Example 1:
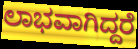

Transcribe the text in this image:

ಲಾಭವಾಗಿದ್ದರೆ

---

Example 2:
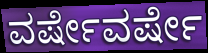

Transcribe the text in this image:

ವರ್ಷೇವರ್ಷೇ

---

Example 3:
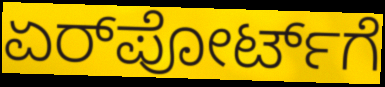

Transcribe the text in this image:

ಏರ್‌ಪೋರ್ಟ್‌ಗೆ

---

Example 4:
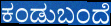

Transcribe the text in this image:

ಕಂಡುಬಂದೆ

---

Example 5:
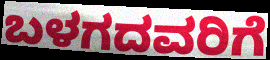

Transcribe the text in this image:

ಬಳಗದವರಿಗೆ